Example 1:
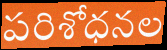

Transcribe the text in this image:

పరిశోధనల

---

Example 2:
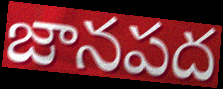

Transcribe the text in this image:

జానపద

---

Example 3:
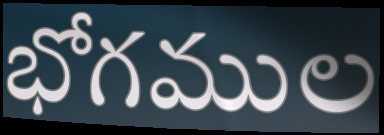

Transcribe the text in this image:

భోగముల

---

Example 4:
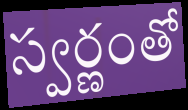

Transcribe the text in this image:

స్వర్ణంతో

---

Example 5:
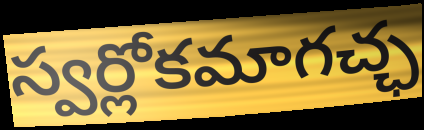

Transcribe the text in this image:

స్వర్లోకమాగచ్ఛ